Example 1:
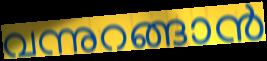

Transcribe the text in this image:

വന്നുറങ്ങാൻ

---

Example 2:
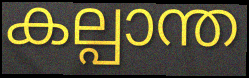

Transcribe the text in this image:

കല്പാന്ത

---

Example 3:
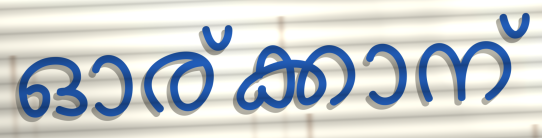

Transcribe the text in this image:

ഓര്ക്കാന്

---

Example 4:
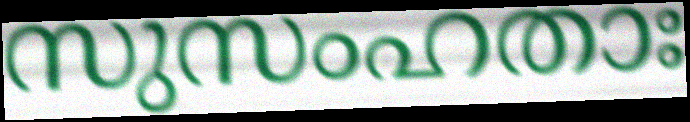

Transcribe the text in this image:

സുസംഹതാഃ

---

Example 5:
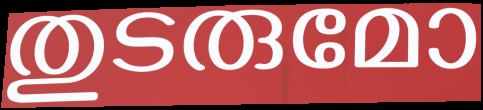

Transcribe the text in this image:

തുടരുമോ